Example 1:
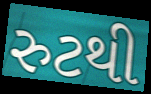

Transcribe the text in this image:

રુટથી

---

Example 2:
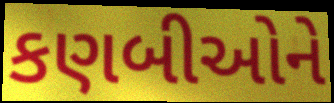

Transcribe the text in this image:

કણબીઓને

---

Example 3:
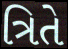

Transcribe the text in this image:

ત્રિતે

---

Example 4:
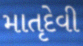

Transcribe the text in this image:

માતૃદેવી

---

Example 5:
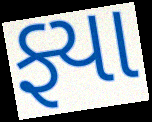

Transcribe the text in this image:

ફ્યા